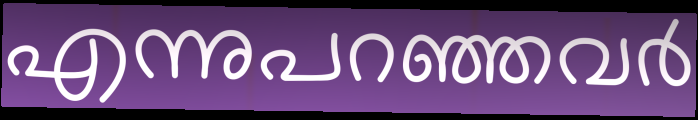
എന്നുപറഞ്ഞവർ